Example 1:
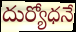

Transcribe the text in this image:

దుర్యోధనే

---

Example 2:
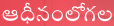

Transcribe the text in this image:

ఆధీనంలోగల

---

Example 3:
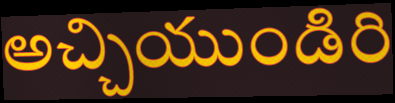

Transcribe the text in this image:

అచ్చియుండిరి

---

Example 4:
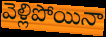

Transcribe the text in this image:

వెళ్లిపోయినా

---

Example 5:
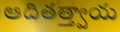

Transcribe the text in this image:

ఆదితత్త్వాయ